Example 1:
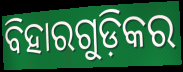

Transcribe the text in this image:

ବିହାରଗୁଡ଼ିକର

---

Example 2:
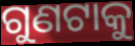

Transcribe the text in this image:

ଗୁଣଟାକୁ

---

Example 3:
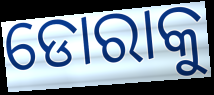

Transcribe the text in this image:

ଡୋରାକୁ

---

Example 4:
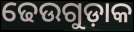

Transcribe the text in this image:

ଢେଉଗୁଡ଼ାକ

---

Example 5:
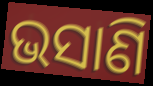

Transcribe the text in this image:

ଭସାଣି